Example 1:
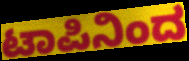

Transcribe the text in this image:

ಟಾಪಿನಿಂದ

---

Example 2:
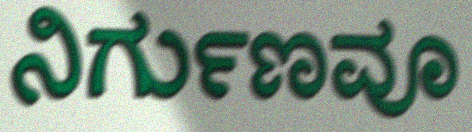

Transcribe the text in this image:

ನಿರ್ಗುಣವೂ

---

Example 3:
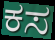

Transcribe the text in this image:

ಕಸ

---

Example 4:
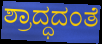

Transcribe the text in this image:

ಶ್ರಾದ್ಧದಂತೆ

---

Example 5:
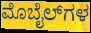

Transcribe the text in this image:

ಮೊಬೈಲ್‌ಗಳ